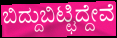
ಬಿದ್ದುಬಿಟ್ಟಿದ್ದೇವೆ